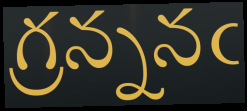
గ్రన్ననఁ